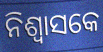
ନିଶ୍ଵାସକେ